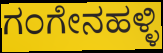
ಗಂಗೇನಹಳ್ಳಿ